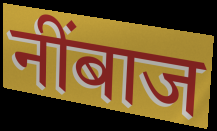
नींबाज